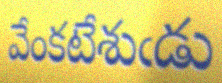
వేంకటేశుఁడు